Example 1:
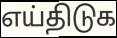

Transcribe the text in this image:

எய்திடுக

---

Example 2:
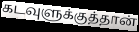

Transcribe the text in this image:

கடவுளுக்குத்தான்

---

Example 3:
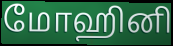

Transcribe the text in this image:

மோஹினி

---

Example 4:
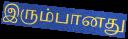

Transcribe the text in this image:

இரும்பானது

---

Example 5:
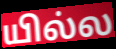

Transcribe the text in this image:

யில்ல